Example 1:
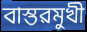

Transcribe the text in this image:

বাস্তৱমুখী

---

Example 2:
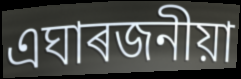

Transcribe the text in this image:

এঘাৰজনীয়া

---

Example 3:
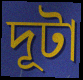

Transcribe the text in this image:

দূটা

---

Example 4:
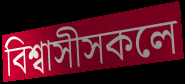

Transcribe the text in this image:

বিশ্বাসীসকলে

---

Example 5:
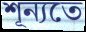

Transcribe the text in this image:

শূন্যতে